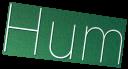
Hum